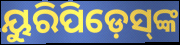
ୟୁରିପିଡ଼େସ୍‌ଙ୍କ